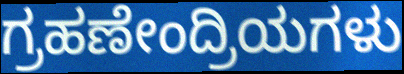
ಗ್ರಹಣೇಂದ್ರಿಯಗಳು